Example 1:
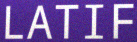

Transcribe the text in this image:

LATIF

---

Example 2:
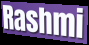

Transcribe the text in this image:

Rashmi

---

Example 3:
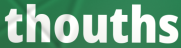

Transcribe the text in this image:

thouths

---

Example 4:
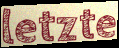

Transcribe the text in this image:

letzte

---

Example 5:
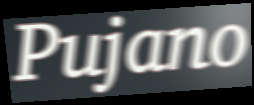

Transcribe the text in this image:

Pujano